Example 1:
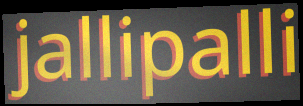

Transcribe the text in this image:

jallipalli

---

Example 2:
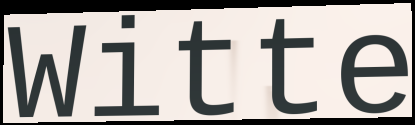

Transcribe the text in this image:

Witte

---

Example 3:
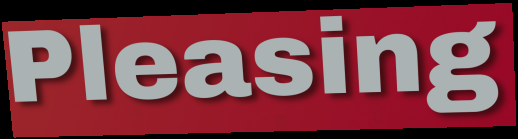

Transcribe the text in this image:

Pleasing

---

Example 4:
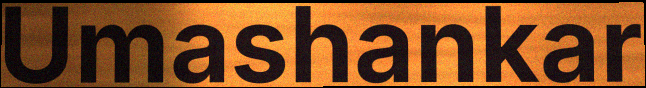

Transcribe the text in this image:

Umashankar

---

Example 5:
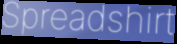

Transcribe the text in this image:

Spreadshirt